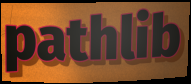
pathlib